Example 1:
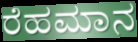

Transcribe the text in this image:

ರೆಹಮಾನ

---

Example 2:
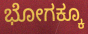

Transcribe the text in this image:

ಭೋಗಕ್ಕೂ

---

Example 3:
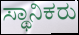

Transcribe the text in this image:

ಸ್ಥಾನಿಕರು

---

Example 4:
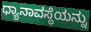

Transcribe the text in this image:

ಧ್ಯಾನಾವಸ್ಥೆಯನ್ನು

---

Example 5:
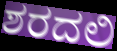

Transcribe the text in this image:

ಶರದಲಿ